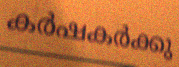
കർഷകർക്കു